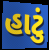
હાટું